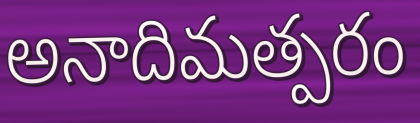
అనాదిమత్పరం